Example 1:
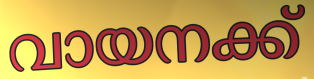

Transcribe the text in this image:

വായനക്ക്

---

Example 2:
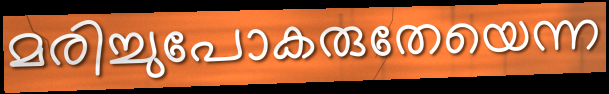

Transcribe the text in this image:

മരിച്ചുപോകരുതേയെന്ന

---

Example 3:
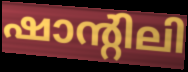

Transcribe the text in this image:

ഷാന്റിലി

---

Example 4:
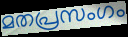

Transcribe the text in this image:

മതപ്രസംഗം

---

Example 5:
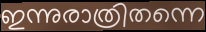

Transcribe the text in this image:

ഇന്നുരാത്രിതന്നെ